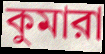
কুমারা